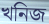
খনিজ